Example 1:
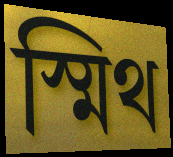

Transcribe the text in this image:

স্মিথ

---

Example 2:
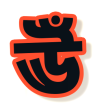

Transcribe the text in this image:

ঊঁ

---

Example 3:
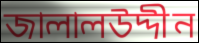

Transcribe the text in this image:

জালালউদ্দীন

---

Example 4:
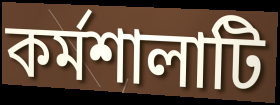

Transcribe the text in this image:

কর্মশালাটি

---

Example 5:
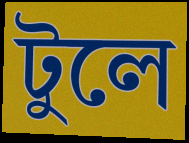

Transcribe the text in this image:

টুলে